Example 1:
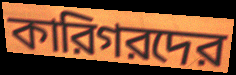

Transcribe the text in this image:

কারিগরদের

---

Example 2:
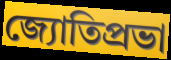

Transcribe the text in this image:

জ্যোতিপ্রভা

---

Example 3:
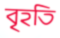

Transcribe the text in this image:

বৃহতি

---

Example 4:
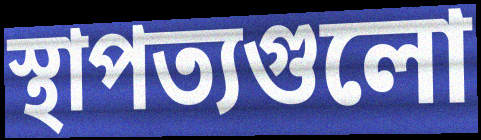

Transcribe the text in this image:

স্থাপত্যগুলো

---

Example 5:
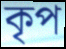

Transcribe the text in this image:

কৃপ